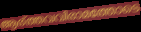
ആര്ത്തവവിരാമത്തോടെ